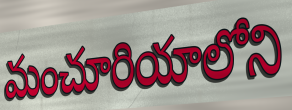
మంచూరియాలోని